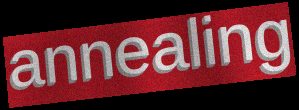
annealing